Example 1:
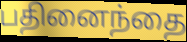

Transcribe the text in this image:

பதினைந்தை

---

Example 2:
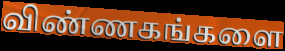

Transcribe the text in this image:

விண்ணகங்களை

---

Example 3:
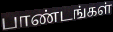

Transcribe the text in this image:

பாண்டங்கள்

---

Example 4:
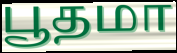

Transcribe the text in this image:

பூதமா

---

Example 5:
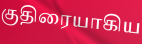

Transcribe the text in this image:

குதிரையாகிய